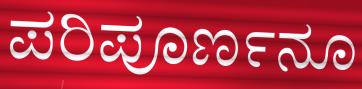
ಪರಿಪೂರ್ಣನೂ